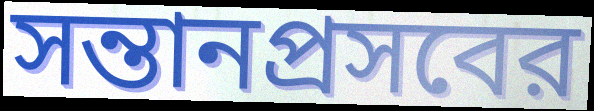
সন্তানপ্রসবের